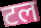
टल